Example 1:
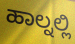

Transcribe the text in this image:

ಹಾಲ್ನಲ್ಲಿ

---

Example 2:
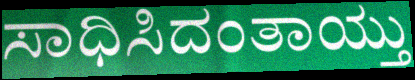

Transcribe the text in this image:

ಸಾಧಿಸಿದಂತಾಯ್ತು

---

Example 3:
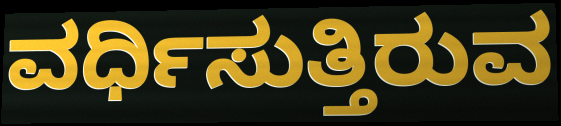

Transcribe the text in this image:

ವರ್ಧಿಸುತ್ತಿರುವ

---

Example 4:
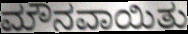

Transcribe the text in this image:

ಮೌನವಾಯಿತು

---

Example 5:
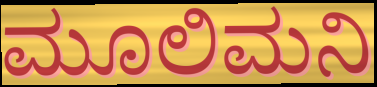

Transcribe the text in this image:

ಮೂಲಿಮನಿ